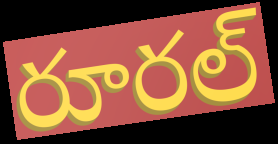
రూరల్